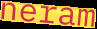
neram